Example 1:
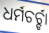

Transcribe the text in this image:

ଧର୍ମଚର୍ଚ୍ଚା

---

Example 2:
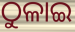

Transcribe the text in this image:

ଠୁଳାଇ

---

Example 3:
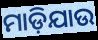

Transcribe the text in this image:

ମାଡ଼ିଯାଉ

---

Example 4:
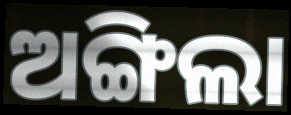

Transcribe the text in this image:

ଅଙ୍ଗିଲା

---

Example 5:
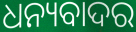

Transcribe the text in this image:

ଧନ୍ୟବାଦର